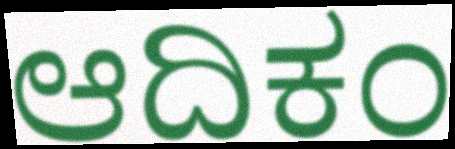
ಆದಿಕಂ